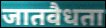
जातवैधता